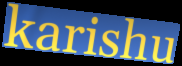
karishu